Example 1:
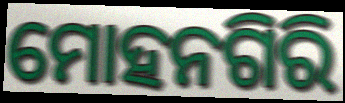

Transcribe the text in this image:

ମୋହନଗିରି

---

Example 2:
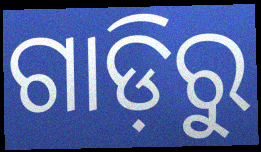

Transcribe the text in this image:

ଗାଡ଼ିରୁ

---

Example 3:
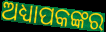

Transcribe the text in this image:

ଅଧ୍ୟାପକଙ୍କର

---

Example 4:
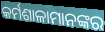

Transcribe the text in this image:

କର୍ମଶାଳାମାନଙ୍କର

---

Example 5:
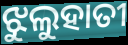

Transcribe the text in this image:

ଝୁଲୁହାତୀ